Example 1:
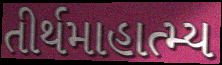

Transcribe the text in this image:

તીર્થમાહાત્મ્ય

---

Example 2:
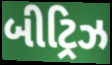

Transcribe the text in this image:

બીટ્રિઝ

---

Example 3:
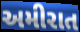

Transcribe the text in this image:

અમીરાત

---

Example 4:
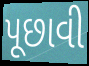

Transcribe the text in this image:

પૂછાવી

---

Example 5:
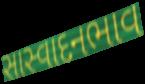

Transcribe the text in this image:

સાસ્વાદનભાવ